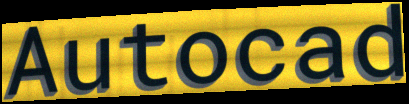
Autocad